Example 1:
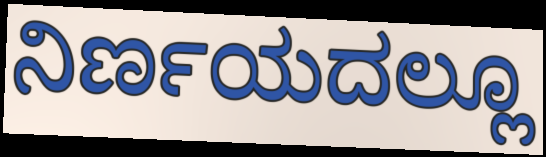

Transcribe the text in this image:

ನಿರ್ಣಯದಲ್ಲೂ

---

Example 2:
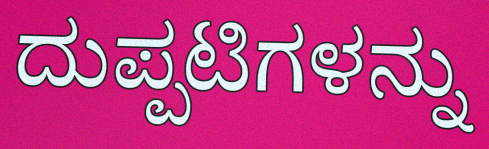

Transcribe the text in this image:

ದುಪ್ಪಟಿಗಳನ್ನು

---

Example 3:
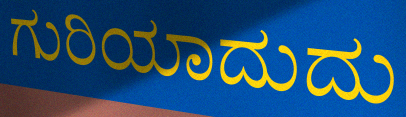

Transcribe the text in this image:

ಗುರಿಯಾದುದು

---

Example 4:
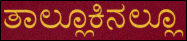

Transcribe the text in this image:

ತಾಲ್ಲೂಕಿನಲ್ಲೂ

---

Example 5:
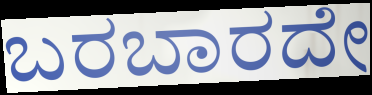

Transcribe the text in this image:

ಬರಬಾರದೇ